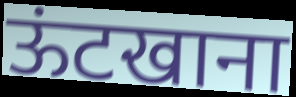
ऊंटखाना